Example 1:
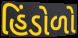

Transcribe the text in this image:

હિંડોળો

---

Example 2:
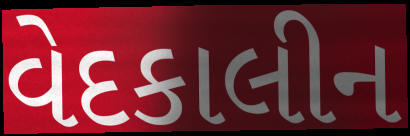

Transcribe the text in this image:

વેદકાલીન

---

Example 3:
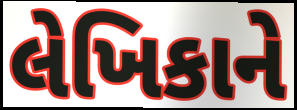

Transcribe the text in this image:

લેખિકાને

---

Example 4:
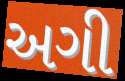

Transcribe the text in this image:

અગી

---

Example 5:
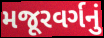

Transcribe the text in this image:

મજૂરવર્ગનું